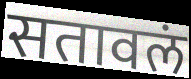
सतावलं